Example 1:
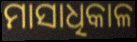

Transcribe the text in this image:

ମାସାଧିକାଳ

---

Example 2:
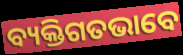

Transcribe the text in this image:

ବ୍ୟକ୍ତିଗତଭାବେ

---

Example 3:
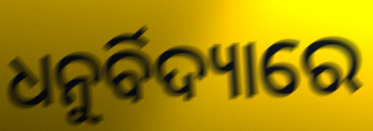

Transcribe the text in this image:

ଧନୁର୍ବିଦ୍ୟାରେ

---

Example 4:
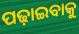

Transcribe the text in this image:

ପଢ଼ାଇବାକୁ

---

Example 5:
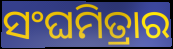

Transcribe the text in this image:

ସଂଘମିତ୍ରାର